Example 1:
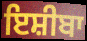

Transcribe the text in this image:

ਇਸ਼ੀਬਾ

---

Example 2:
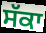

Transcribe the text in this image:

ਸੱਕਾ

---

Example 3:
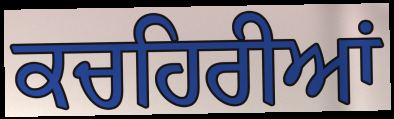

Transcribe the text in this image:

ਕਚਹਿਰੀਆਂ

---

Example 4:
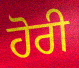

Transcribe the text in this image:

ਹੋਰੀ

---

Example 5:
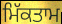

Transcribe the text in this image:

ਮਿੱਕਤਾਮ